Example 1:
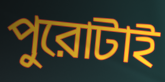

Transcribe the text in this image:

পুরোটাই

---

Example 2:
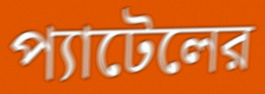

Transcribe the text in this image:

প্যাটেলের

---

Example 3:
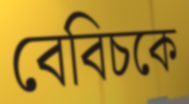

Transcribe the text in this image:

বেবিচকে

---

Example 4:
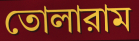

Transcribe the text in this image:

তোলারাম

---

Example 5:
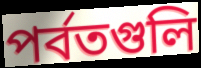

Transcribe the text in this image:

পর্বতগুলি